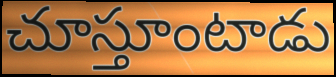
చూస్తూంటాడు